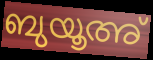
ബുയൂഅ്